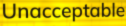
Unacceptable